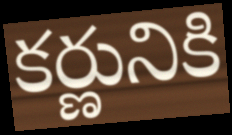
కర్ణునికి